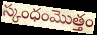
స్కంధంమొత్తం